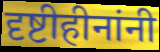
दृष्टीहीनांनी